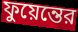
ফুয়েন্তের